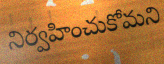
నిర్వహించుకోమని